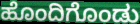
ಹೊಂದಿಗೊಂಡು